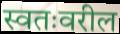
स्वतःवरील